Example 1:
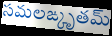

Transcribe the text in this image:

సమలఙ్కృతమ్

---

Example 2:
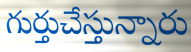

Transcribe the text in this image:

గుర్తుచేస్తున్నారు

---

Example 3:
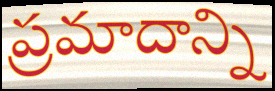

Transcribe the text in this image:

ప్రమాదాన్ని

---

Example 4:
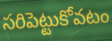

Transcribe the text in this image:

సరిపెట్టుకోవటం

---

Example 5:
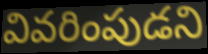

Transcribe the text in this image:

వివరింపుడని